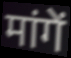
मांगें